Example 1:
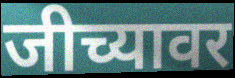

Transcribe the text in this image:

जीच्यावर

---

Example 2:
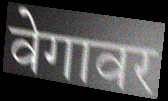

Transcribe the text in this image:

वेगावर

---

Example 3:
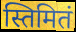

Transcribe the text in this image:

स्तिमितं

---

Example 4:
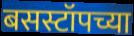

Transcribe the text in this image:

बसस्टॉपच्या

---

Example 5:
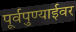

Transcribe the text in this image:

पूर्वपुण्याईवर